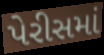
પેરીસમાં